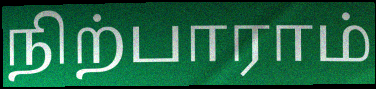
நிற்பாராம்